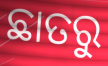
ଛାତରୁ